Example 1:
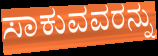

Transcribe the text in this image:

ಸಾಕುವವರನ್ನು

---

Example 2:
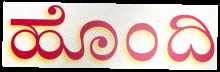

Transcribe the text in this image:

ಹೊಂದಿ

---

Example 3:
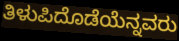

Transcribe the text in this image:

ತಿಳುಪಿದೊಡೆಯೆನ್ನವರು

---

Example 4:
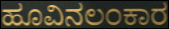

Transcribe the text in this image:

ಹೂವಿನಲಂಕಾರ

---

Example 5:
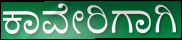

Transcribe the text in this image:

ಕಾವೇರಿಗಾಗಿ